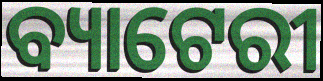
ବ୍ୟାଟେରୀ